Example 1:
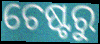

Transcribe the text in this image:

ଚେଷ୍ଟରୁ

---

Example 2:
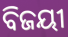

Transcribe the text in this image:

ବିଜୟୀ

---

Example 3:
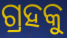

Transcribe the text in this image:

ଗ୍ରହକୁ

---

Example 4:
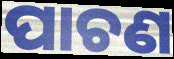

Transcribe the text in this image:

ପାଚଣ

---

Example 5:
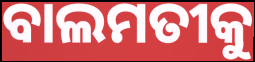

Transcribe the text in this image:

ବାଲମତୀକୁ